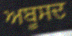
ਅਬੂਸਦ